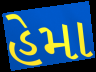
હેમા